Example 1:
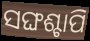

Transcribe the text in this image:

ସଙ୍ଘଶ୍ଚାପି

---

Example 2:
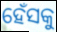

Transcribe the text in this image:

ହେଁସକୁ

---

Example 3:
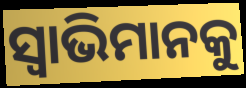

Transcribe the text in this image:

ସ୍ୱାଭିମାନକୁ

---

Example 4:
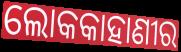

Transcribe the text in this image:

ଲୋକକାହାଣୀର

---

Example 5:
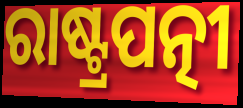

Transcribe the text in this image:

ରାଷ୍ଟ୍ରପତ୍ନୀ